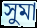
সুমা